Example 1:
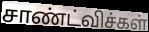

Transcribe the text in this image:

சாண்ட்விச்கள்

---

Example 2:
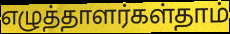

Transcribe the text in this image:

எழுத்தாளர்கள்தாம்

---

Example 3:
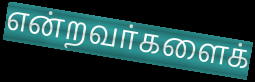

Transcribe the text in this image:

என்றவர்களைக்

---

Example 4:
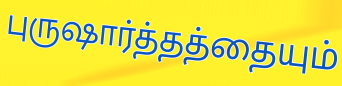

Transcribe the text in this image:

புருஷார்த்தத்தையும்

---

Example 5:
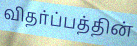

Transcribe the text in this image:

விதர்ப்பத்தின்